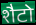
शैटो